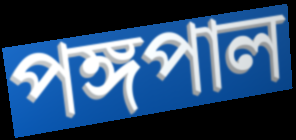
পঙ্গপাল